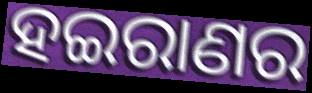
ହଇରାଣର